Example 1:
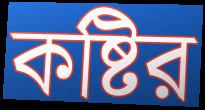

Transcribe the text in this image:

কষ্টির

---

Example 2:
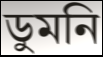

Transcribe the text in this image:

ডুমনি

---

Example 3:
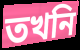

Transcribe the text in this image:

তখনি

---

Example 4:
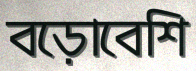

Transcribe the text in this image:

বড়োবেশি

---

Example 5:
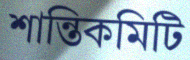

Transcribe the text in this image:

শান্তিকমিটি